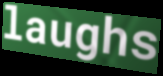
laughs